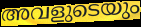
അവളുടെയും